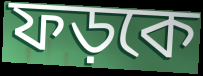
ফড়কে